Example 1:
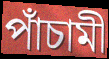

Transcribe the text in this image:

পাঁচামী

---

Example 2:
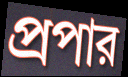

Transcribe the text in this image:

প্রপার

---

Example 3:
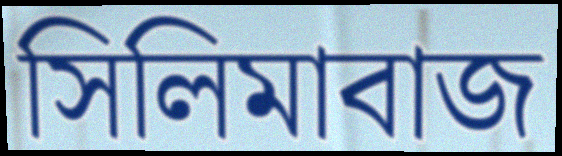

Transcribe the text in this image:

সিলিমাবাজ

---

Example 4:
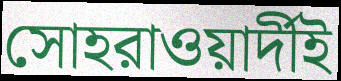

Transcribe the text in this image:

সোহরাওয়ার্দীই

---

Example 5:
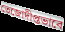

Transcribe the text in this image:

তেজোদীপ্তভাবে